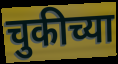
चुकीच्या